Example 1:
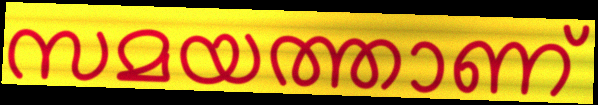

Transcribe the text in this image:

സമയത്താണ്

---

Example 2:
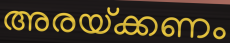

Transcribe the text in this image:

അരയ്‌ക്കണം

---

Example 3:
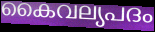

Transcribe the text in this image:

കൈവല്യപദം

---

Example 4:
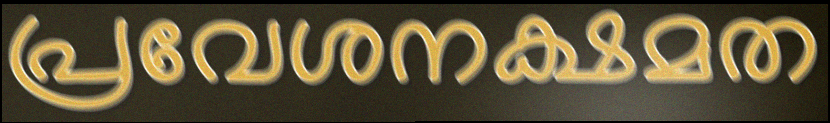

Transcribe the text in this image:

പ്രവേശനക്ഷമത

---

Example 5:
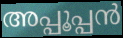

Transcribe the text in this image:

അപ്പൂപ്പൻ